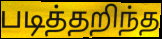
படித்தறிந்த